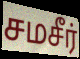
சமசீர்